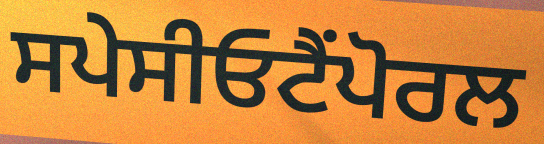
ਸਪੇਸੀਓਟੈਂਪੋਰਲ